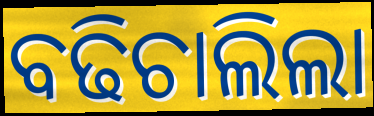
ବଢିଚାଲିଲା